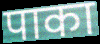
पाका